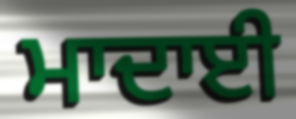
ਮਾਦਾਈ